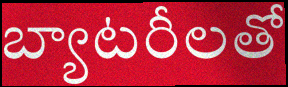
బ్యాటరీలతో